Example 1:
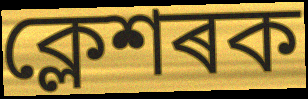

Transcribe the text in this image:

ক্লেশৰক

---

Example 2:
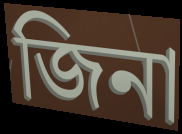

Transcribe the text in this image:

জিনা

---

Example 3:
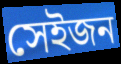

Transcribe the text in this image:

সেইজন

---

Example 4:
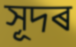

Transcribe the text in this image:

সূদৰ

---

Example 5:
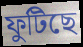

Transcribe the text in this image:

ফুটিছে